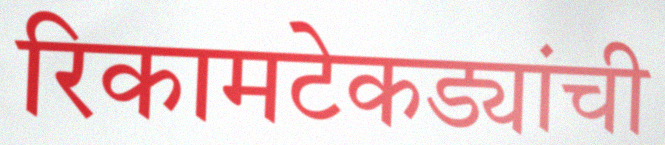
रिकामटेकड्यांची